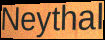
Neythal